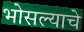
भोसल्याचे